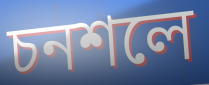
চনশলে